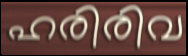
ഹരിരിവ